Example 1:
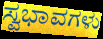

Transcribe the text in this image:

ಸ್ವಭಾವಗಳು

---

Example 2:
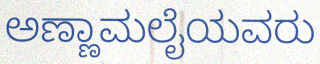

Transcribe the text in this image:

ಅಣ್ಣಾಮಲೈಯವರು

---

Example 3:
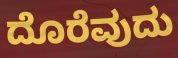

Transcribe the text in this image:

ದೊರೆವುದು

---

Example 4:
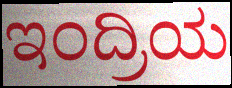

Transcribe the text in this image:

ಇಂದ್ರಿಯ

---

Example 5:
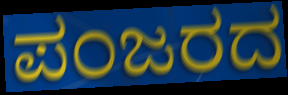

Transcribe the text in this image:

ಪಂಜರದ